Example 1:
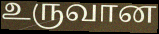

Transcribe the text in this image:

உருவான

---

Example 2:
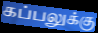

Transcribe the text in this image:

கப்பலுக்கு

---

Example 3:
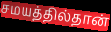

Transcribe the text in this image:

சமயத்தில்தான்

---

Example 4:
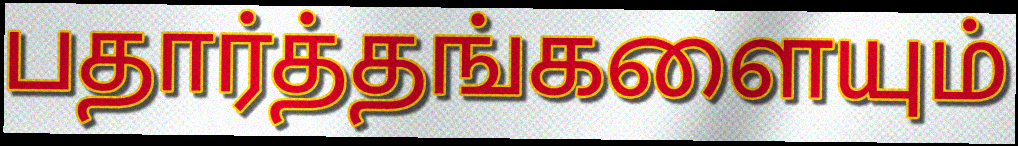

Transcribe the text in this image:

பதார்த்தங்களையும்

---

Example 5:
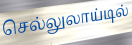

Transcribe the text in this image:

செல்லுலாய்டில்